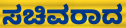
ಸಚಿವರಾದ